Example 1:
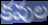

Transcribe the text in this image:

కవుల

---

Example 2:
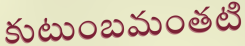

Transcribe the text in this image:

కుటుంబమంతటి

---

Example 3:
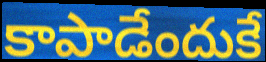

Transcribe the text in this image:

కాపాడేందుకే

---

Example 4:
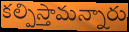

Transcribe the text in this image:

కల్పిస్తామన్నారు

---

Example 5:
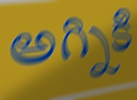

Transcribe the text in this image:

అగ్నికి